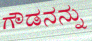
ಗೌಡನನ್ನು